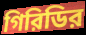
গিরিডির